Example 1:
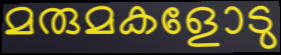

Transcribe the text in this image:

മരുമകളോടു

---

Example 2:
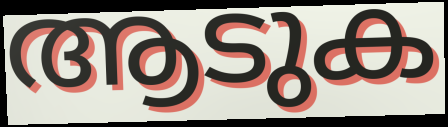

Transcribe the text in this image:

ആടുക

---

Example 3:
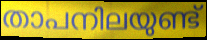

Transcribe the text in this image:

താപനിലയുണ്ട്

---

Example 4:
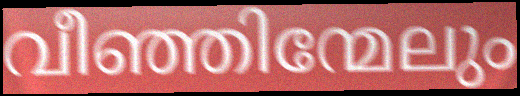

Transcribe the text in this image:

വീഞ്ഞിന്മേലും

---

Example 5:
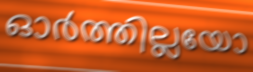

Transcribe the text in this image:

ഓർത്തില്ലയോ